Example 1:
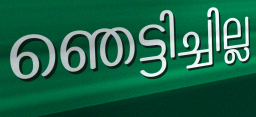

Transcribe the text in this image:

ഞെട്ടിച്ചില്ല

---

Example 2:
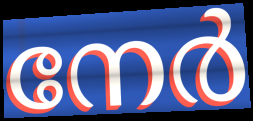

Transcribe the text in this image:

നേർ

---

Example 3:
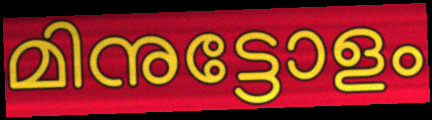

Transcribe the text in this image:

മിനുട്ടോളം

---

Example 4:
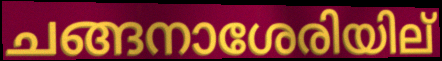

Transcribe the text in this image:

ചങ്ങനാശേരിയില്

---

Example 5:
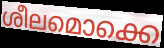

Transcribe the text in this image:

ശീലമൊക്കെ